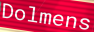
Dolmens